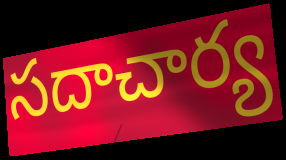
సదాచార్య